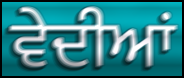
ਵੇਦੀਆਂ